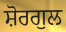
ਸ਼ੋਰਗੁਲ